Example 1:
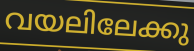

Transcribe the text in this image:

വയലിലേക്കു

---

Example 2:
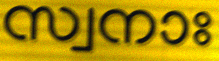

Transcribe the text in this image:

സ്വനാഃ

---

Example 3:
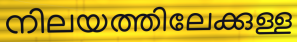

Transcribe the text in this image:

നിലയത്തിലേക്കുള്ള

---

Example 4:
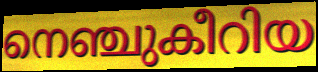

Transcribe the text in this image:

നെഞ്ചുകീറിയ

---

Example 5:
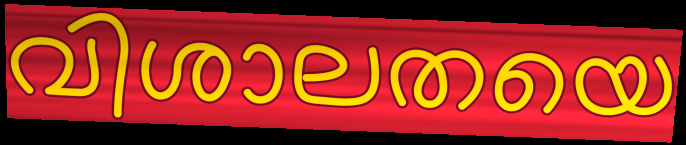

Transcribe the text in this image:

വിശാലതയെ